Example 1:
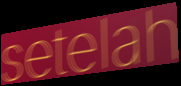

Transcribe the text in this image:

setelah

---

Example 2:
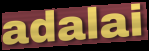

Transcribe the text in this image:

adalai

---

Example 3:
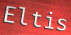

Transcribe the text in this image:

Eltis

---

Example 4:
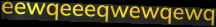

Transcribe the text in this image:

eewqeeeqwewqewq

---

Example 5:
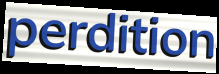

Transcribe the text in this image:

perdition